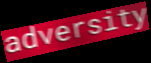
adversity